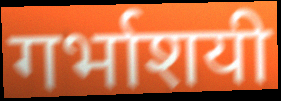
गर्भाशयी